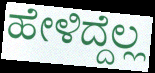
ಹೇಳಿದ್ದೆಲ್ಲ